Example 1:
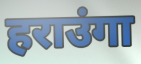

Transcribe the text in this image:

हराउंगा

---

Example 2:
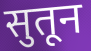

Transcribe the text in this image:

सुतून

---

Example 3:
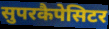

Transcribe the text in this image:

सुपरकैपेसिटर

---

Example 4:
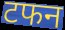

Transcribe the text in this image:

टफन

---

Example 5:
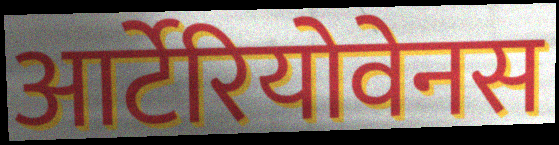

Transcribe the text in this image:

आर्टेरियोवेनस